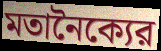
মতানৈক্যের